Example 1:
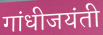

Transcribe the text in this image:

गांधीजयंती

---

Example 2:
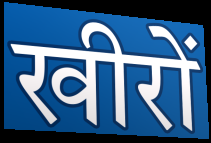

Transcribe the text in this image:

खीरों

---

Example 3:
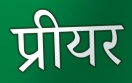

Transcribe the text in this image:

प्रीयर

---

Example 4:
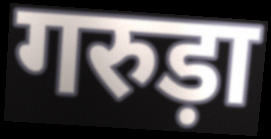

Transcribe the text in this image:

गरुड़ा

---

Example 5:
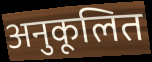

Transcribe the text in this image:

अनुकूलित